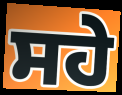
ਸਹੇ